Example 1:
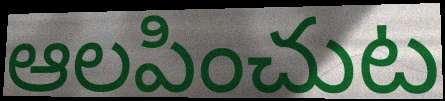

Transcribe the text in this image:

ఆలపించుట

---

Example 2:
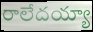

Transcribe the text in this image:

రాలేదయ్యా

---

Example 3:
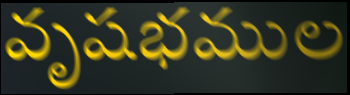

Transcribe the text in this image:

వృషభముల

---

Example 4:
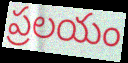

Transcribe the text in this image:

ప్రలయం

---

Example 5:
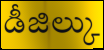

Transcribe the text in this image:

డీజిల్కు